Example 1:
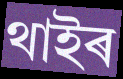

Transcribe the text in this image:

থাইৰ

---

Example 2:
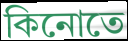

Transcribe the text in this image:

কিনোতে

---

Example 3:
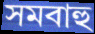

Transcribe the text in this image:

সমবাহু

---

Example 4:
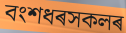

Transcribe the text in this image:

বংশধৰসকলৰ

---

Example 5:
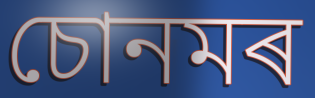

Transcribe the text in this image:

চোনমৰ